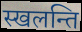
स्खलन्ति